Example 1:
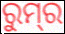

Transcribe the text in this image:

ରୁମ୍‌ର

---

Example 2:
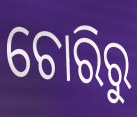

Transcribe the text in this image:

ଚୋରିରୁ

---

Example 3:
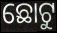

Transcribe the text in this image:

ଛୋଟୁ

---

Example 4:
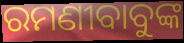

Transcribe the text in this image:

ରମଣୀବାବୁଙ୍କ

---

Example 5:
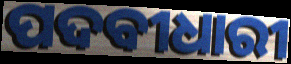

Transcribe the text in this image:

ପଦବୀଧାରୀ